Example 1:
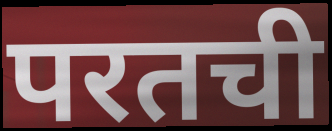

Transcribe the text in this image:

परतची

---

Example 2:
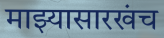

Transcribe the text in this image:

माझ्यासारखंच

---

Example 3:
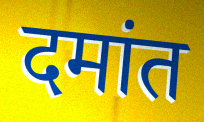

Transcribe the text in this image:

दमांत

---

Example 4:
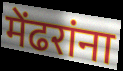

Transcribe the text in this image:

मेंढरांना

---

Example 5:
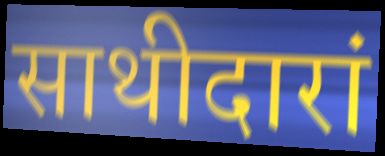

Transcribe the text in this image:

साथीदारां